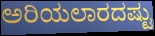
ಅರಿಯಲಾರದಷ್ಟು